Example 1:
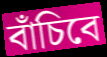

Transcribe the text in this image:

বাঁচিবে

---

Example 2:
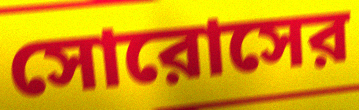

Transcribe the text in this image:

সোরোসের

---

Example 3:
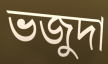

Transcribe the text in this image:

ভজুদা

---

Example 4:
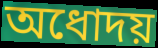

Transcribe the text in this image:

অধোদয়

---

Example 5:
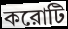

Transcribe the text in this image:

করোটি